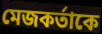
মেজকর্তাকে